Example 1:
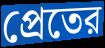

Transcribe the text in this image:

প্রেতের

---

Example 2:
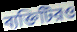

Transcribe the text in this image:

ব্যক্তিটিরও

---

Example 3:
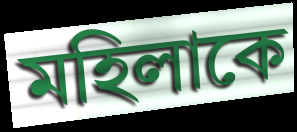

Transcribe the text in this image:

মহিলাকে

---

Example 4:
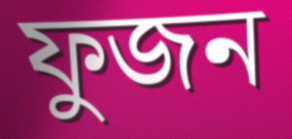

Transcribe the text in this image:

ফুজন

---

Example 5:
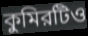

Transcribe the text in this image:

কুমিরটিও